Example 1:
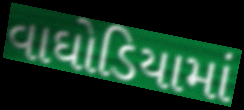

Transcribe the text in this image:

વાઘોડિયામાં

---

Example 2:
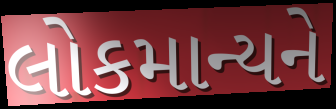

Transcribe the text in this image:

લોકમાન્યને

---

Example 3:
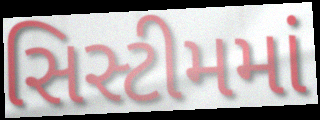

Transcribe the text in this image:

સિસ્ટીમમાં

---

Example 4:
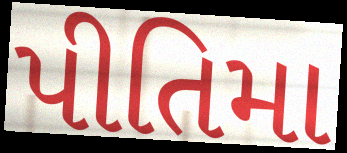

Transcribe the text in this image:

પીતિમા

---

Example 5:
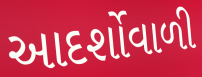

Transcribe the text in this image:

આદર્શોવાળી